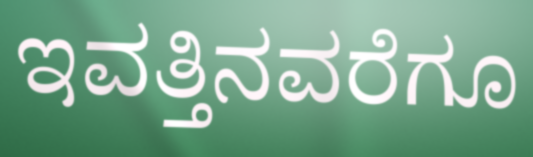
ಇವತ್ತಿನವರೆಗೂ